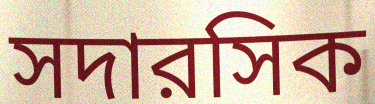
সদারসিক